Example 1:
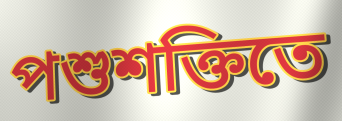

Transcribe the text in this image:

পশুশক্তিতে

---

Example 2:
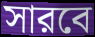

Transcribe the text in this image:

সারবে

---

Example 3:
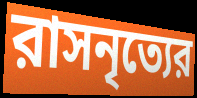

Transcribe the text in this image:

রাসনৃত্যের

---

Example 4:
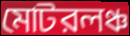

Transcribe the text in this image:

মোটরলঞ্চ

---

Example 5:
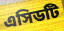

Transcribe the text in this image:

এসিডটি